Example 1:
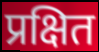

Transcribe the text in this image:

प्रक्षित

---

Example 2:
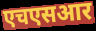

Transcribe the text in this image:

एचएसआर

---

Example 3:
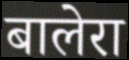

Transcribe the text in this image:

बालेरा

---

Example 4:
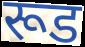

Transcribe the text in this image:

रूड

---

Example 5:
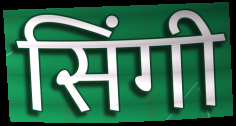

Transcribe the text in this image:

सिंगी